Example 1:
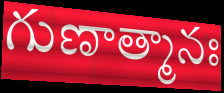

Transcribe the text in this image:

గుణాత్మానః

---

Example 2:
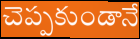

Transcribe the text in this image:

చెప్పకుండానే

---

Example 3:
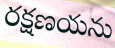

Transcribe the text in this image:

రక్షణయను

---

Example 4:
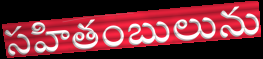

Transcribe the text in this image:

సహితంబులును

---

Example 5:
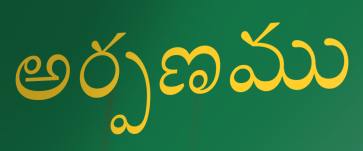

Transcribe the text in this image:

అర్పణము